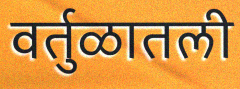
वर्तुळातली